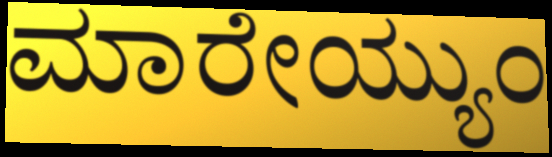
ಮಾರೇಯ್ಯುಂ